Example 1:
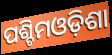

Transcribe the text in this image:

ପଶ୍ଚିମଓଡ଼ିଶା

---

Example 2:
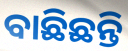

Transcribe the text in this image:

ବାଛିଛନ୍ତି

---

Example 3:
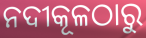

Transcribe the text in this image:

ନଦୀକୂଳଠାରୁ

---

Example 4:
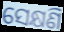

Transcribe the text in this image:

ସେକ୍ଷଣି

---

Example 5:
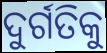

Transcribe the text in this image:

ଦୁର୍ଗତିକୁ